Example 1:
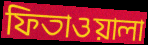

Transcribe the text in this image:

ফিতাওয়ালা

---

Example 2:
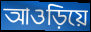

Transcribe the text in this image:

আওড়িয়ে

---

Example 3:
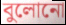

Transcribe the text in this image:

বুলোনো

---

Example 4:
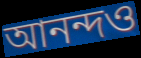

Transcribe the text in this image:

আনন্দও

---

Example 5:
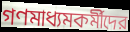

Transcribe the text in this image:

গণমাধ্যমকর্মীদের